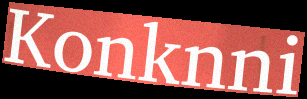
Konknni